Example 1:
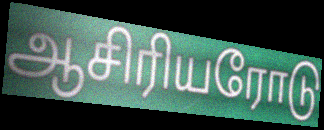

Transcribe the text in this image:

ஆசிரியரோடு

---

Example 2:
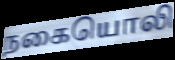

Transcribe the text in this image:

நகையொலி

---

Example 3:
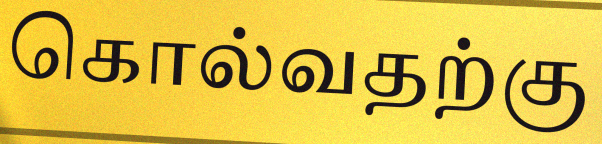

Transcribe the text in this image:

கொல்வதற்கு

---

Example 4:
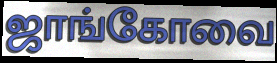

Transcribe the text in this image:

ஜாங்கோவை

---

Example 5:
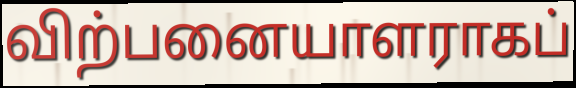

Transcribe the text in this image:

விற்பனையாளராகப்